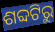
ଶବ୍ଦଟିରୁ